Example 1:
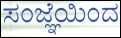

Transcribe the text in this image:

ಸಂಜ್ಞೆಯಿಂದ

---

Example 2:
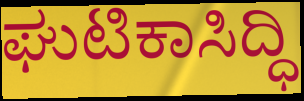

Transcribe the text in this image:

ಘುಟಿಕಾಸಿದ್ಧಿ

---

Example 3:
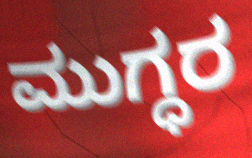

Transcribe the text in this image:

ಮುಗ್ಧರ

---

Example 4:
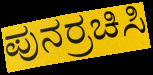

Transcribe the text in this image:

ಪುನರ್ರಚಿಸಿ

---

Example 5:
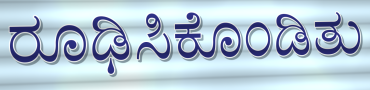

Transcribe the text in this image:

ರೂಢಿಸಿಕೊಂಡಿತು